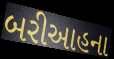
બરીઆહના